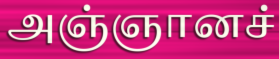
அஞ்ஞானச்